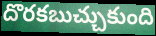
దొరకబుచ్చుకుంది